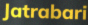
Jatrabari